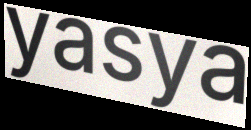
yasya